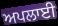
ਅਪਲਾਈ